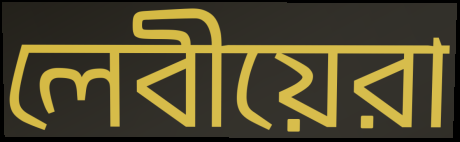
লেবীয়েরা